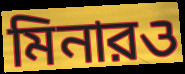
মিনারও